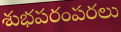
శుభపరంపరలు